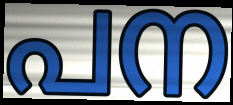
പന